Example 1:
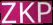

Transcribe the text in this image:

ZKP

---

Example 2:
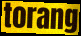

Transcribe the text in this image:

torang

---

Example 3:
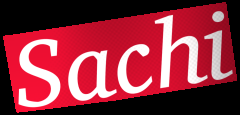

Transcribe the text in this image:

Sachi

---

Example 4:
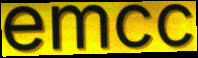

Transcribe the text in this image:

emcc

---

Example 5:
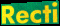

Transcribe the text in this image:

Recti